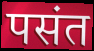
पसंत